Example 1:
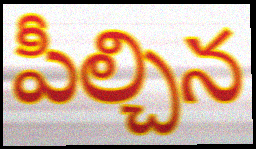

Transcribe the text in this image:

పీల్చిన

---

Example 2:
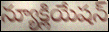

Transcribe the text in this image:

న్యూక్లియేషన్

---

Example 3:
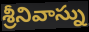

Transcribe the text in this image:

శ్రీనివాస్ను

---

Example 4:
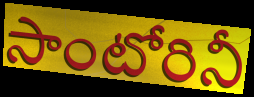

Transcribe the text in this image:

సాంటోరినీ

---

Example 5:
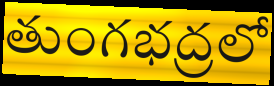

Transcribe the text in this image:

తుంగభద్రలో